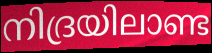
നിദ്രയിലാണ്ട